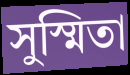
সুস্মিতা